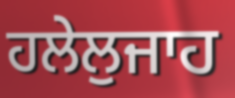
ਹਲੇਲੁਜਾਹ